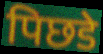
पिछडे